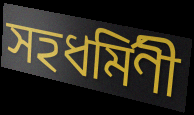
সহধৰ্মিণী